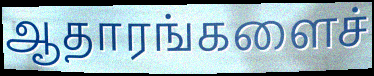
ஆதாரங்களைச்